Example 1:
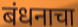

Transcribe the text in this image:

बंधनाचा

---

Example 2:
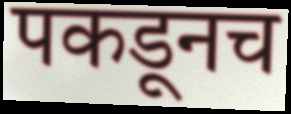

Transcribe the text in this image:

पकडूनच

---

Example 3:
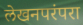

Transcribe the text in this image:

लेखनपरंपरा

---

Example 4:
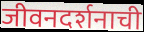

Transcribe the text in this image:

जीवनदर्शनाची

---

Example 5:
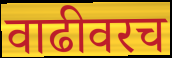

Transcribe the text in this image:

वाढीवरच